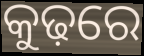
କୁଢ଼ରେ